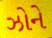
ઝોને